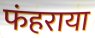
फंहराया